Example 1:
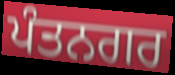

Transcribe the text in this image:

ਪੰਤਨਗਰ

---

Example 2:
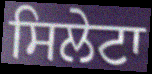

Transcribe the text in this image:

ਸਿਲੇਟਾ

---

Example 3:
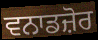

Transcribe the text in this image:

ਵਨਾਡਜ਼ੋਰ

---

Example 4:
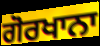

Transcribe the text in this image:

ਗੋਰਖਾਨਾ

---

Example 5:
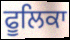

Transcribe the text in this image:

ਫੂਲਿਕਾ